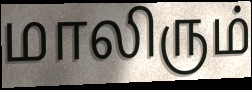
மாலிரும்